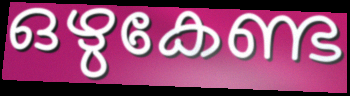
ഒഴുകേണ്ട